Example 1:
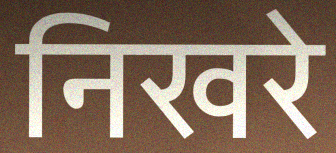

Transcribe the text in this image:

निखरे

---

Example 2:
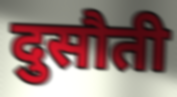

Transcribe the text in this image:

दुसौती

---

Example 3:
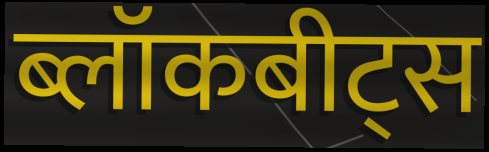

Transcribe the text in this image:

ब्लॉकबीट्स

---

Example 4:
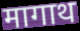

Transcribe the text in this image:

मागाथ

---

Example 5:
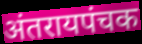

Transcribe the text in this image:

अंतरायपंचक